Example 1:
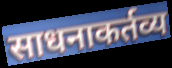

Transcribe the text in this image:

साधनाकर्तव्य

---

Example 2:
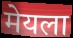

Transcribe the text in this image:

मेयला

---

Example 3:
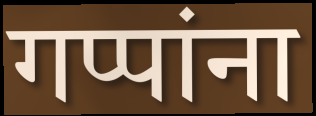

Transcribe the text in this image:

गप्पांना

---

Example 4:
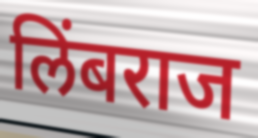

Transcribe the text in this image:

लिंबराज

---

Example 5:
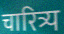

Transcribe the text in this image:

चारित्र्य